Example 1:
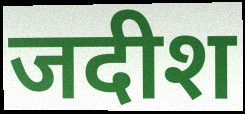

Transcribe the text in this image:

जदीश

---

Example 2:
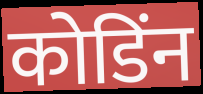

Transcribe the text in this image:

कोडिंन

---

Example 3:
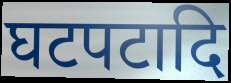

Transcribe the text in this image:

घटपटादि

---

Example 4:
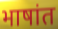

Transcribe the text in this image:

भाषांत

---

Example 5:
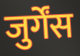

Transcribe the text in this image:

जुर्गेंस